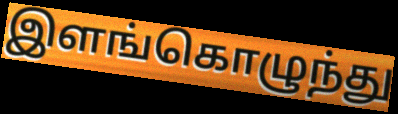
இளங்கொழுந்து